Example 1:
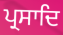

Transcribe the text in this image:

ਪ੍ਰਸਾਦਿ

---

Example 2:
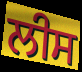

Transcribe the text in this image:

ਲੀਸ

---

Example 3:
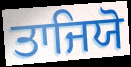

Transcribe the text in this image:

ਤਾਜਿਯੋ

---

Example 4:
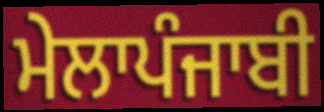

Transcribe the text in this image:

ਮੇਲਾਪੰਜਾਬੀ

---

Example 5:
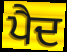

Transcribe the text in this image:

ਪੈਦ